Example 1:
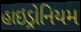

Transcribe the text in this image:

હાઇડ્રોનિયમ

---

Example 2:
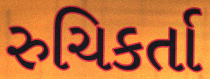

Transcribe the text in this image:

રુચિકર્તા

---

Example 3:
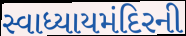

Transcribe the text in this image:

સ્વાધ્યાયમંદિરની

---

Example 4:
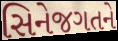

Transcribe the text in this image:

સિનેજગતને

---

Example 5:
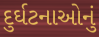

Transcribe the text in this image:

દુર્ઘટનાઓનું